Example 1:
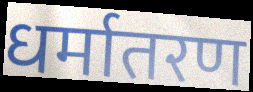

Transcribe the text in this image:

धर्मातरण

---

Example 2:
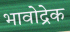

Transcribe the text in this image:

भावोद्रेक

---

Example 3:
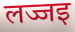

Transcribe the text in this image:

लज्जइ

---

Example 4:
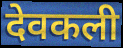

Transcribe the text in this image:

देवकली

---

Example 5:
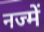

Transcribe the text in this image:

नज्में